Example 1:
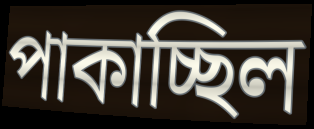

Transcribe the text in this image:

পাকাচ্ছিল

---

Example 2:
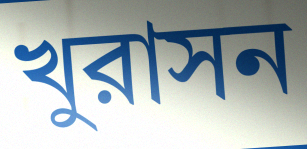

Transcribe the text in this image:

খুরাসন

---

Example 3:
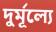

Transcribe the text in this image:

দুর্মূল্যে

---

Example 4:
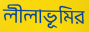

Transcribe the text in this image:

লীলাভূমির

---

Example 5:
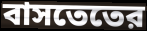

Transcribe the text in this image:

বাসতেতের